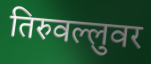
तिरुवल्लुवर